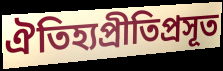
ঐতিহ্যপ্রীতিপ্রসূত